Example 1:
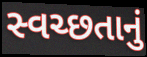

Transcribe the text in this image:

સ્વચ્છતાનું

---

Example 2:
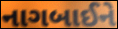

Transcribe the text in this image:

નાગબાઈને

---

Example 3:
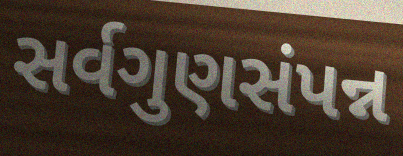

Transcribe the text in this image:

સર્વગુણસંપન્ન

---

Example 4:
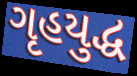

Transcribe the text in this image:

ગૃહયુદ્ધ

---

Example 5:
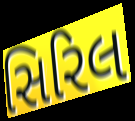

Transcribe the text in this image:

સિરિલ